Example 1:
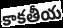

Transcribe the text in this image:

కాకతీయ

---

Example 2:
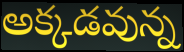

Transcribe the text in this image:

అక్కడవున్న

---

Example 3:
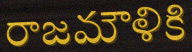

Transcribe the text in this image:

రాజమౌళికి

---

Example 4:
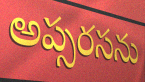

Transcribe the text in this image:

అప్సరసను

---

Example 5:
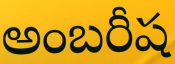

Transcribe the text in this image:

అంబరీష